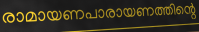
രാമായണപാരായണത്തിന്റെ